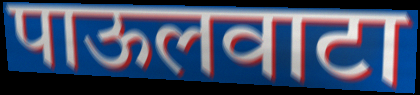
पाऊलवाटा